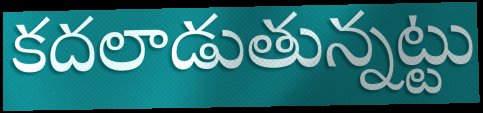
కదలాడుతున్నట్టు